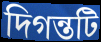
দিগন্তটি